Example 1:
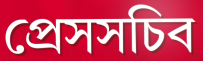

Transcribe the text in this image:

প্রেসসচিব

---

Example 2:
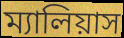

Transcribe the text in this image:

ম্যালিয়াস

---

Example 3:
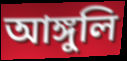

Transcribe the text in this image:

আঙ্গুলি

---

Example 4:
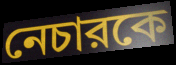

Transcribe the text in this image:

নেচারকে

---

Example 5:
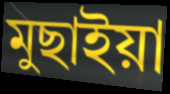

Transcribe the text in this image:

মুছাইয়া